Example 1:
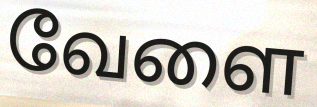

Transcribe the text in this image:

வேளை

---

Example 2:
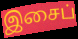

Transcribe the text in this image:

இசைப்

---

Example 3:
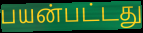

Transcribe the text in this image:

பயன்பட்டது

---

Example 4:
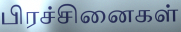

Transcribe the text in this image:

பிரச்சினைகள்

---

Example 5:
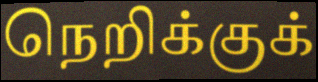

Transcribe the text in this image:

நெறிக்குக்